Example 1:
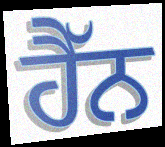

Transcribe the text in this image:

ਹੈੱਨ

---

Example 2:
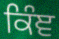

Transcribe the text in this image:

ਕਿੰਞ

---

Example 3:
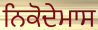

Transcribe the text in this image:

ਨਿਕੋਦੇਮਾਸ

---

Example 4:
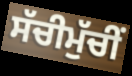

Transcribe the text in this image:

ਸੱਚੀਮੁੱਚੀਂ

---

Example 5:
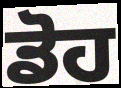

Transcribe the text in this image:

ਡੋਹ